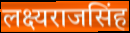
लक्ष्यराजसिंह